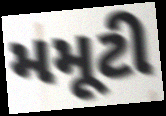
મમૂટી